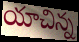
యాచిన్న